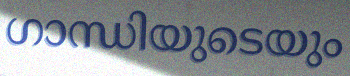
ഗാന്ധിയുടെയും